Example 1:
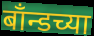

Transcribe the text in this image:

बाँन्डच्या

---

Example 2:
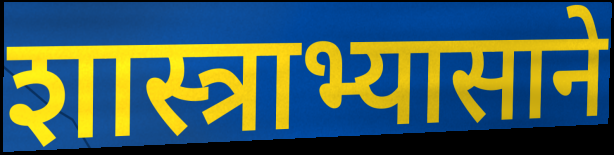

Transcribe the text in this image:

शास्त्राभ्यासाने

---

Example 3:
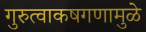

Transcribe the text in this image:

गुरुत्वाकषगणामुळे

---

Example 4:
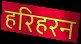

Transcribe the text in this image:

हरिहरन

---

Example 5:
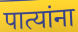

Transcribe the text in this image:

पात्यांना